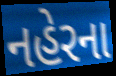
નહેરના